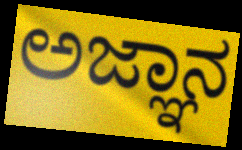
ಅಜ್ಞಾನ